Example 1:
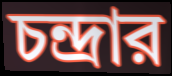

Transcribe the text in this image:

চন্দ্রার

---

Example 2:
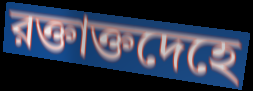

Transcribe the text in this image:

রক্তাক্তদেহে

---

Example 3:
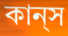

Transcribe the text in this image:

কান্‌স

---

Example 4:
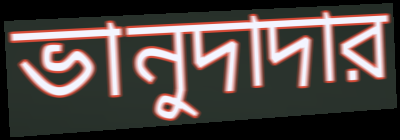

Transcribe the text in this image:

ভানুদাদার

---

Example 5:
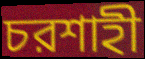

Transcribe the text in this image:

চরশাহী